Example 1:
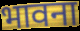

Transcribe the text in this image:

भावना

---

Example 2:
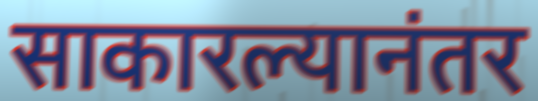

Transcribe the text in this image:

साकारल्यानंतर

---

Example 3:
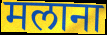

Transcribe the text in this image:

मलाना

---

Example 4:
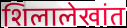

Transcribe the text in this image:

शिलालेखांत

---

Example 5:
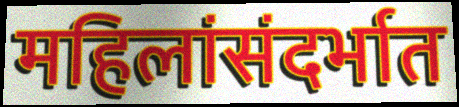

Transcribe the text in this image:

महिलांसंदर्भात